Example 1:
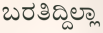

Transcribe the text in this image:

ಬರತಿದ್ದಿಲ್ಲಾ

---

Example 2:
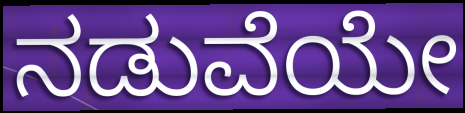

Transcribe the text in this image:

ನಡುವೆಯೇ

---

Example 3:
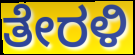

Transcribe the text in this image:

ತೇರಳಿ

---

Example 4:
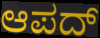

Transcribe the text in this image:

ಆಪದ್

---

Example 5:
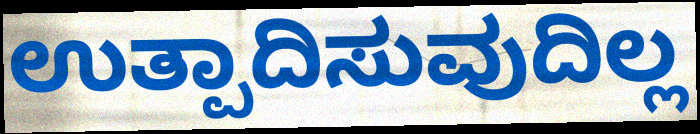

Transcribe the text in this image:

ಉತ್ಪಾದಿಸುವುದಿಲ್ಲ